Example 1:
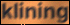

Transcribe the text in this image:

klining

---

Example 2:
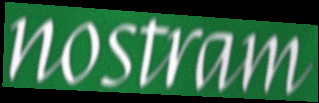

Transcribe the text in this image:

nostram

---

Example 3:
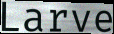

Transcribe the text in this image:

Larve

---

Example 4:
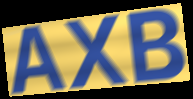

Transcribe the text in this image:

AXB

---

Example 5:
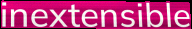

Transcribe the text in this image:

inextensible